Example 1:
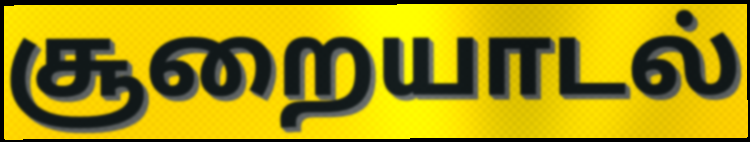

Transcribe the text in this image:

சூறையாடல்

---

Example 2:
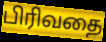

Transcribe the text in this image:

பிரிவதை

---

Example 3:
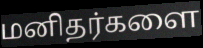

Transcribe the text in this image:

மனிதர்களை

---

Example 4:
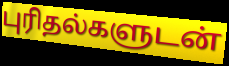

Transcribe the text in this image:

புரிதல்களுடன்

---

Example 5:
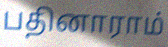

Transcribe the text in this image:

பதினாராம்